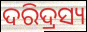
ଦରିଦ୍ରସ୍ୟ